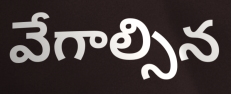
వేగాల్సిన